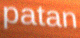
patan